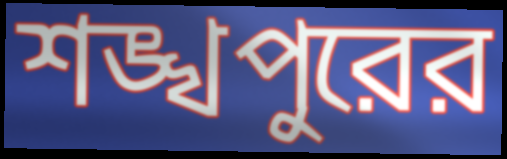
শঙ্খপুরের